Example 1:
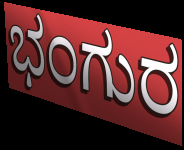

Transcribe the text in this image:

ಭಂಗುರ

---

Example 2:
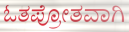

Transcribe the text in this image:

ಓತಪ್ರೋತವಾಗಿ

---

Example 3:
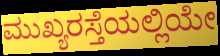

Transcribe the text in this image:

ಮುಖ್ಯರಸ್ತೆಯಲ್ಲಿಯೇ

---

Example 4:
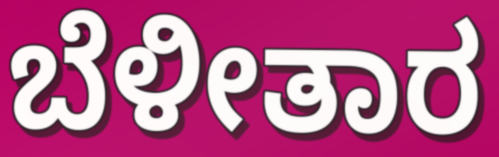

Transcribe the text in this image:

ಬೆಳೀತಾರ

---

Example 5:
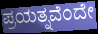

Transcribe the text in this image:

ಪ್ರಯತ್ನವೆಂದೇ